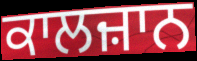
ਕਾਲਜ਼ਾਨ